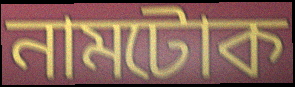
নামটোক